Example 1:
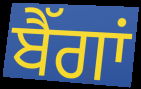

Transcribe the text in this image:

ਬੈੱਗਾਂ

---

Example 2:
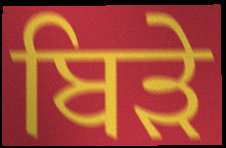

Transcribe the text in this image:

ਬਿੜੇ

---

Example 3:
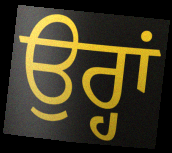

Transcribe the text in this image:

ਉਰ੍ਹਾਂ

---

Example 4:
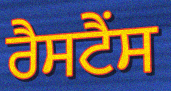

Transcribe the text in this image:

ਰੈਸਟੈਂਸ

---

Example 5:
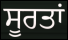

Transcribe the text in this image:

ਸੂਰਤਾਂ